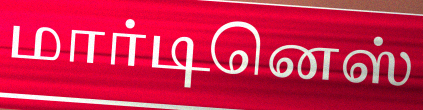
மார்டினெஸ்